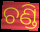
ଚଣ୍ଡି